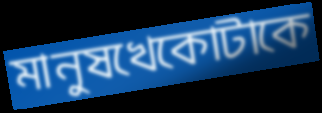
মানুষখেকোটাকে